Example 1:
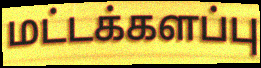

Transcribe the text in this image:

மட்டக்களப்பு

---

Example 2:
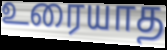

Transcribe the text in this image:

உரையாத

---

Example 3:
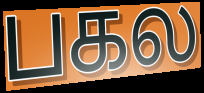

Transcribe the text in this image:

பகல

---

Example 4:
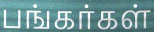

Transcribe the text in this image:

பங்கர்கள்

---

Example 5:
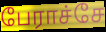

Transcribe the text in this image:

பேராச்சே